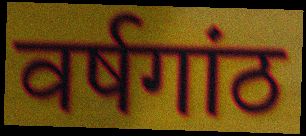
वर्षगांठ